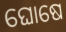
ଘୋଷେ